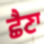
ਛੈਣਾ